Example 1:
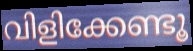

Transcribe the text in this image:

വിളിക്കേണ്ടൂ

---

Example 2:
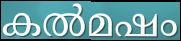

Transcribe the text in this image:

കൽമഷം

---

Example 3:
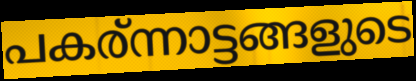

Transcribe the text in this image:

പകര്ന്നാട്ടങ്ങളുടെ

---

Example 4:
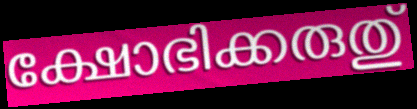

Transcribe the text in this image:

ക്ഷോഭിക്കരുതു്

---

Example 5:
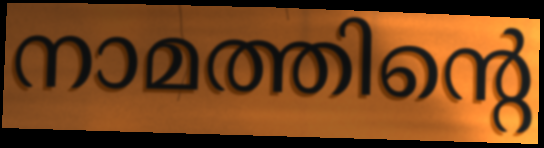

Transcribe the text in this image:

നാമത്തിന്റെ